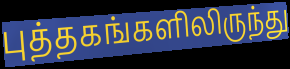
புத்தகங்களிலிருந்து